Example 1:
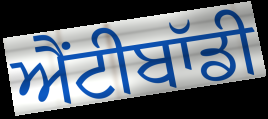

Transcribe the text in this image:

ਐਂਟੀਬਾੱਡੀ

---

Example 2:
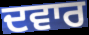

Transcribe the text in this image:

ਦਵਾਰ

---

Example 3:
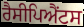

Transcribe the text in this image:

ਰੈਸੀਪਿਐਂਟਸ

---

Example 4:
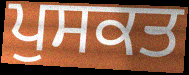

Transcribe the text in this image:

ਪੁਸਕਤ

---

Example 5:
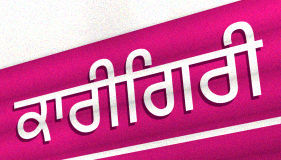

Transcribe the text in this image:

ਕਾਰੀਗਿਰੀ